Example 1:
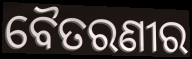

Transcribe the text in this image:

ବୈତରଣୀର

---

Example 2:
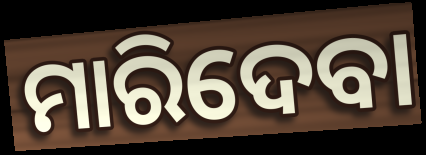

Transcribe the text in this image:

ମାରିଦେବା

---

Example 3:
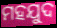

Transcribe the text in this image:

ମହଯୁଦ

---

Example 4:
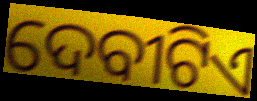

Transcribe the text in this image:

ଦେବୀଟିଏ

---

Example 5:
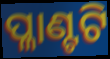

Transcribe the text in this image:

ପ୍ଳାଣ୍ଟଟି